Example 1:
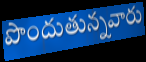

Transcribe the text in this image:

పొందుతున్నవారు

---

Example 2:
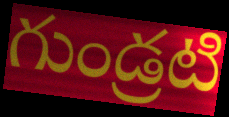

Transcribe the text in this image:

గుండ్రటి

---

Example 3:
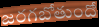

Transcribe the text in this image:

జరగబోతుందో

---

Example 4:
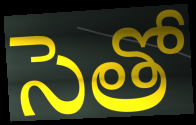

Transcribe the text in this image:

సెతో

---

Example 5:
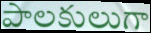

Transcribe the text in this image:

పాలకులుగా